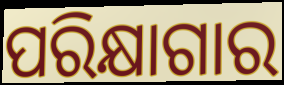
ପରିକ୍ଷାଗାର